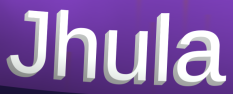
Jhula